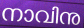
നാവിനു